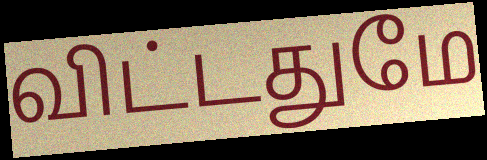
விட்டதுமே